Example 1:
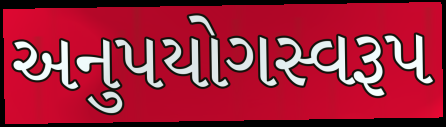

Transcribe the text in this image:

અનુપયોગસ્વરૂપ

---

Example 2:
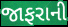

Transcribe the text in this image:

જાફરાની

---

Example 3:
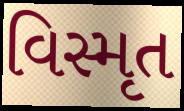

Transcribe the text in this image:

વિસ્મૃત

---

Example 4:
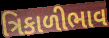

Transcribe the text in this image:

ત્રિકાળીભાવ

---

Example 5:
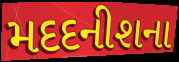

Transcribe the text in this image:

મદદનીશના